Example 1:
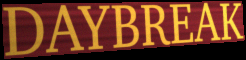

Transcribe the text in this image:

DAYBREAK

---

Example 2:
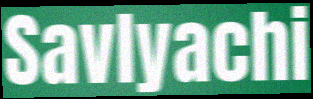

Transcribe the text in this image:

Savlyachi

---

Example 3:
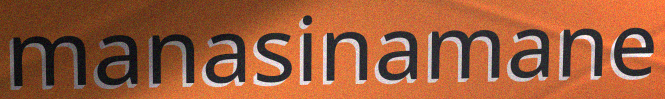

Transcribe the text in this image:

manasinamane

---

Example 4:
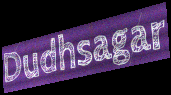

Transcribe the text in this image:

Dudhsagar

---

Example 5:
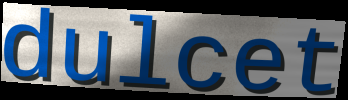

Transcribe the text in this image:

dulcet